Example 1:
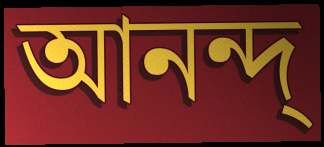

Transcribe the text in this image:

আনন্দ্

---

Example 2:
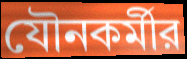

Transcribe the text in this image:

যৌনকর্মীর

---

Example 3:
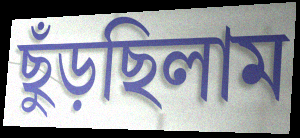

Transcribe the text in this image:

ছুঁড়ছিলাম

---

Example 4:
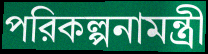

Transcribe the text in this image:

পরিকল্পনামন্ত্রী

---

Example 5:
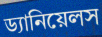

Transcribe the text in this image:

ড্যানিয়েলস